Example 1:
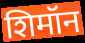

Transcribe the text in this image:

शिमॉन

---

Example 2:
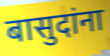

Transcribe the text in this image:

बासुदांना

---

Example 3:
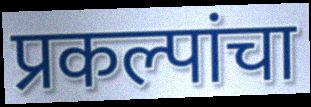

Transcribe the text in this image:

प्रकल्पांचा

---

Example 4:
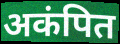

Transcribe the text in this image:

अकंपित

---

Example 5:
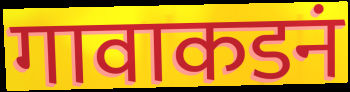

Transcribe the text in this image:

गावाकडनं